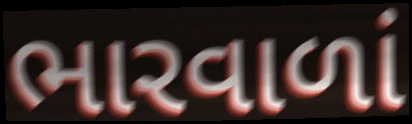
ભારવાળાં